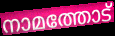
നാമത്തോട്